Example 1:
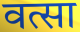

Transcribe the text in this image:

वत्सा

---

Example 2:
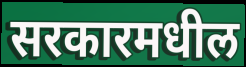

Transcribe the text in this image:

सरकारमधील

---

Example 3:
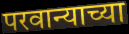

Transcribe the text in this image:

परवान्याच्या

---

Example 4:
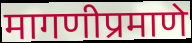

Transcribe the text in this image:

मागणीप्रमाणे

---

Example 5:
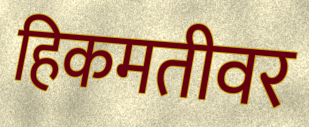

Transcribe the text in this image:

हिकमतीवर